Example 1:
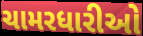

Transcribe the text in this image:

ચામરધારીઓ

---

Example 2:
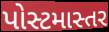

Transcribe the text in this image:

પોસ્ટમાસ્તર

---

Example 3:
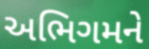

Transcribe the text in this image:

અભિગમને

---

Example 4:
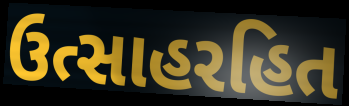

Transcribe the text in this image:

ઉત્સાહરહિત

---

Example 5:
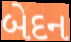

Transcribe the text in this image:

બેદન